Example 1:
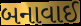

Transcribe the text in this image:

બનાવાઈ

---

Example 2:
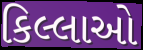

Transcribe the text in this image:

કિલ્લાઓ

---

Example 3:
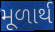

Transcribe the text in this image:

મૂળાર્થ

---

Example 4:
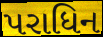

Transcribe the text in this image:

પરાધિન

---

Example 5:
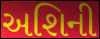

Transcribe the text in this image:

અશિની